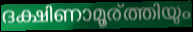
ദക്ഷിണാമൂര്ത്തിയും